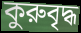
কুরুবৃদ্ধ